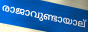
രാജാവുണ്ടായാല്